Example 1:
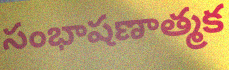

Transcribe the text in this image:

సంభాషణాత్మక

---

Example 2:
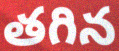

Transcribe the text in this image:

తగిన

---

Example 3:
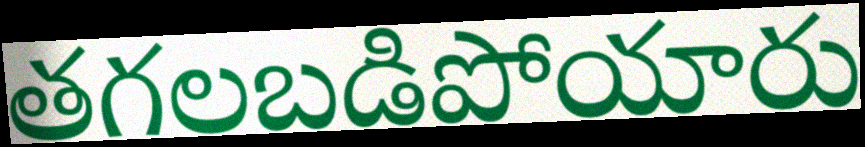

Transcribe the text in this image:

తగలబడిపోయారు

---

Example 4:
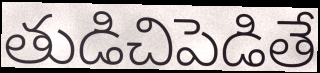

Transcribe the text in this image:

తుడిచిపెడితే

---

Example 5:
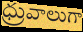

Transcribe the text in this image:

ధ్రువాలుగా